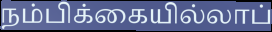
நம்பிக்கையில்லாப்